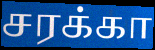
சரக்கா